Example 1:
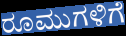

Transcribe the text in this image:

ರೂಮುಗಳಿಗೆ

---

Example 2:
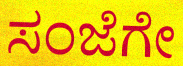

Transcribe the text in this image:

ಸಂಜೆಗೇ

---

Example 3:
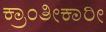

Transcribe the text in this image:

ಕ್ರಾಂತೀಕಾರೀ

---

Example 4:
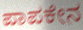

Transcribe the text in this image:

ಪಾಪಕೇನ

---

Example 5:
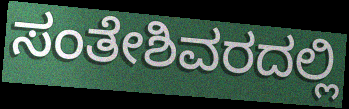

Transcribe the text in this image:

ಸಂತೇಶಿವರದಲ್ಲಿ